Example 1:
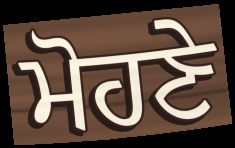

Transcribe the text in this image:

ਮੋਹਣੇ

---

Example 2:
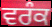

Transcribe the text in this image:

ਵਰੰਕ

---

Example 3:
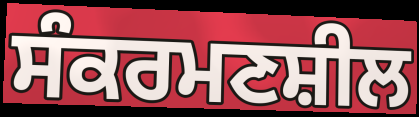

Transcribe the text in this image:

ਸੰਕਰਮਣਸ਼ੀਲ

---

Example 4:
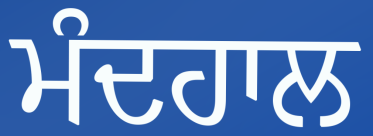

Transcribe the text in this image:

ਮੰਦਹਾਲ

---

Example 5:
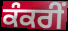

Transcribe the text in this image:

ਕੰਕਰੀਂ